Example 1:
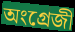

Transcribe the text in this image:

অংগ্ৰেজী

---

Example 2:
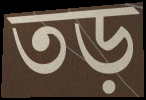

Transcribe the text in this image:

তড়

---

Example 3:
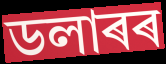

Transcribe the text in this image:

ডলাৰৰ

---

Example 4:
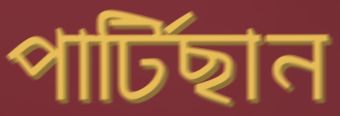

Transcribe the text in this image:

পাৰ্টিছান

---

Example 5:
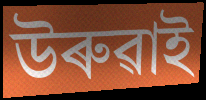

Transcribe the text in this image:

উৰুৱাই